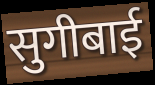
सुगीबाई